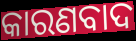
କାରଣବାଦ